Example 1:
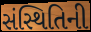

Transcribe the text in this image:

સંસ્થિતિની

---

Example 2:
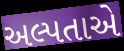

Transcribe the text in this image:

અલ્પતાએ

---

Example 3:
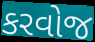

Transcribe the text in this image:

કરવોજ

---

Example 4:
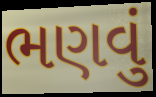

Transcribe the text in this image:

ભણવું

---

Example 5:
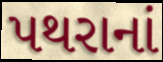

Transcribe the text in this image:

પથરાનાં